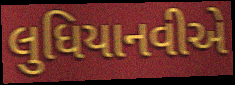
લુધિયાનવીએ